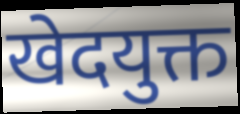
खेदयुक्त